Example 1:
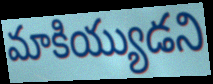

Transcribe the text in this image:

మాకియ్యుడని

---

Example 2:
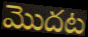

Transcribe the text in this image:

మొదట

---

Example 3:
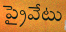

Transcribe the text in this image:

ప్రైవేటు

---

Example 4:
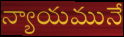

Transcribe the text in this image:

న్యాయమునే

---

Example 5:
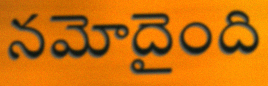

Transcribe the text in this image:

నమోదైంది